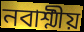
নবাশ্মীয়